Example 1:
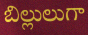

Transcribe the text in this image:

బిల్లులుగా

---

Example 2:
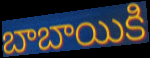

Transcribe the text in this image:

బాబాయికి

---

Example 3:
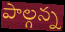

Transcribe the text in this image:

పాల్గన్న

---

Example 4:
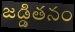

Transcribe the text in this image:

జడ్డితనం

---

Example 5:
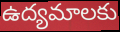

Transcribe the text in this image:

ఉద్యమాలకు